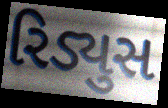
રિડ્યુસ